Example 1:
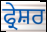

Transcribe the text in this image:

ਫ੍ਰੇਸ਼ਰ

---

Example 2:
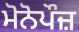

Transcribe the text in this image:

ਮੋਨੋਪੌਜ਼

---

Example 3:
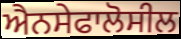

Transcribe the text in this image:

ਐਨਸੇਫਾਲੋਸੀਲ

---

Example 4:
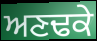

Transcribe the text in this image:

ਅਣਢਕੇ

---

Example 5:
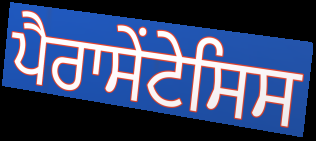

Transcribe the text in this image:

ਪੈਰਾਸੇਂਟੇਸਿਸ